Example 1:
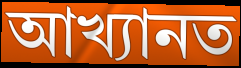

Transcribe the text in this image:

আখ্যানত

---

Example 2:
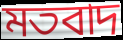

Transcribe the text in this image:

মতবাদ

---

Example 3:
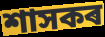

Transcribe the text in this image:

শাসকৰ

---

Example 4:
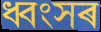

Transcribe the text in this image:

ধ্বংসৰ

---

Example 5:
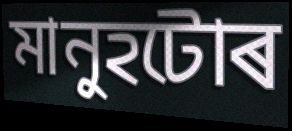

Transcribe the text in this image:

মানুহটোৰ